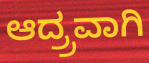
ಆದ್ರ್ರವಾಗಿ